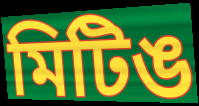
মিটিঙ